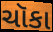
ચૉકા